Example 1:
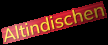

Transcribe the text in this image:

Altindischen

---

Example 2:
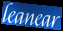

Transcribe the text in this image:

leanear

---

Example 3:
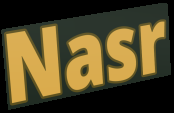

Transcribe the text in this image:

Nasr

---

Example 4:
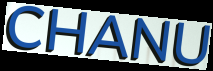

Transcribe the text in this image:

CHANU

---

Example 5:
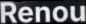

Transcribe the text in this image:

Renou